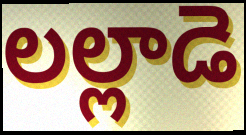
లల్లాడె